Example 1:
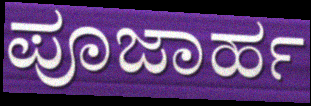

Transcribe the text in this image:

ಪೂಜಾರ್ಹ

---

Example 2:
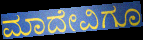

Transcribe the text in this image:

ಮಾದೇವಿಗೂ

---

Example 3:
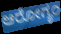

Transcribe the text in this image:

ಆರೋಗ್ಯಂ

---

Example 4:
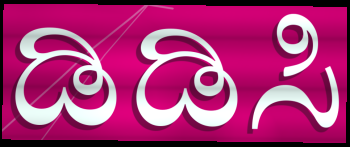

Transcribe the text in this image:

ಡಿಡಿಸಿ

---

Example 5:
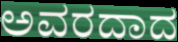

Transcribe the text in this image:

ಅವರದಾದ